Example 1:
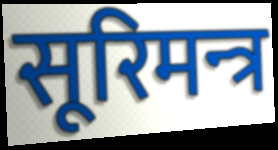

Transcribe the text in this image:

सूरिमन्त्र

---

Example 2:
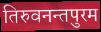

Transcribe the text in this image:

तिरुवनन्तपुरम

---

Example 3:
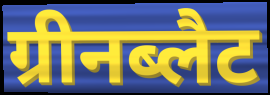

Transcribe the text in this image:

ग्रीनब्लैट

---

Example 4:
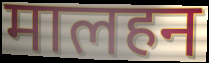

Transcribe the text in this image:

मालहन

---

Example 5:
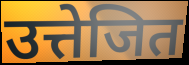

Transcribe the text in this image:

उत्तेजित